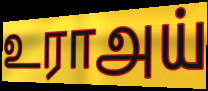
உராஅய்